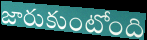
జారుకుంటోంది